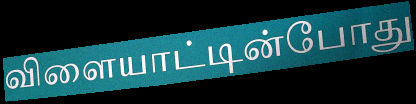
விளையாட்டின்போது